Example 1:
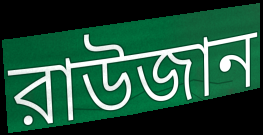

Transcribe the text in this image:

রাউজান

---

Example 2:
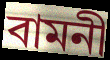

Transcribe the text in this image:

বামনী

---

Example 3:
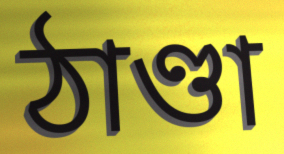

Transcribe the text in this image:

ঠাণ্ডা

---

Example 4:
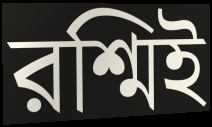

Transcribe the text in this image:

রশ্মিই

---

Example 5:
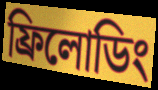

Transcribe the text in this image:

ফ্রিলোডিং